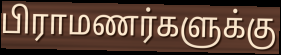
பிராமணர்களுக்கு